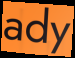
ady